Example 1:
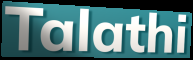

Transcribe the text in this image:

Talathi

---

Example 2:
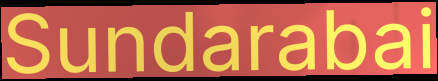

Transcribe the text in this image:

Sundarabai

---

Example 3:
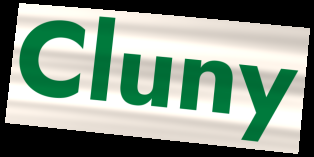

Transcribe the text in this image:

Cluny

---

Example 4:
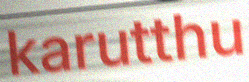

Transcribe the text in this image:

karutthu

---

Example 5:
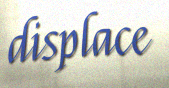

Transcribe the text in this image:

displace